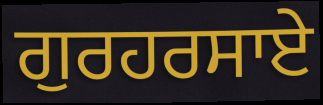
ਗੁਰਹਰਸਾਏ